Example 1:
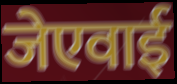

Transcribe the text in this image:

जेएवाई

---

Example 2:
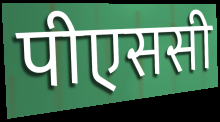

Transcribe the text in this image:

पीएससी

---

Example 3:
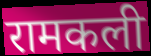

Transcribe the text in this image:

रामकली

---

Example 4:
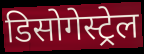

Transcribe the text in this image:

डिसोगेस्ट्रेल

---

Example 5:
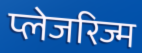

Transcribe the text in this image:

प्लेजरिज्म